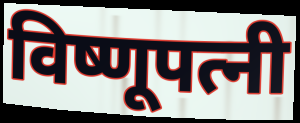
विष्णूपत्नी